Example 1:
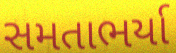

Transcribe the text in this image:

સમતાભર્યા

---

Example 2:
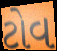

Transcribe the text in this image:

ટોવ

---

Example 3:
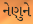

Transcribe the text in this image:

નેણુને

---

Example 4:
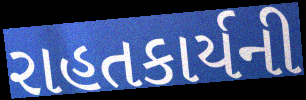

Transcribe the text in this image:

રાહતકાર્યની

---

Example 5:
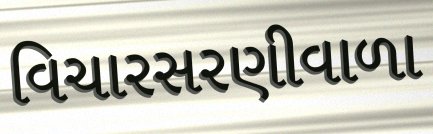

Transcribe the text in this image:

વિચારસરણીવાળા